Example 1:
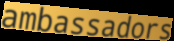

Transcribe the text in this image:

ambassadors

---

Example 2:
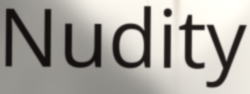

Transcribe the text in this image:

Nudity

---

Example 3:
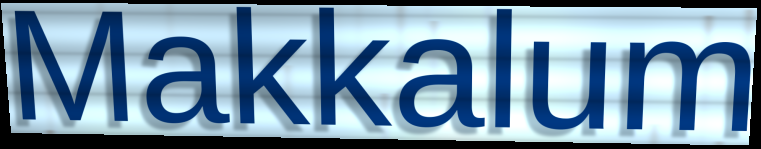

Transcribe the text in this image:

Makkalum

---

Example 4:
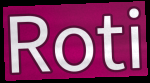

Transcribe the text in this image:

Roti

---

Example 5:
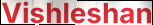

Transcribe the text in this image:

Vishleshan